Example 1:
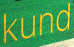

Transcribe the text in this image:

kund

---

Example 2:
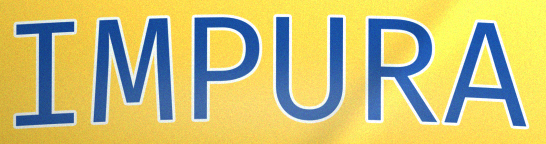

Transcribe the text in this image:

IMPURA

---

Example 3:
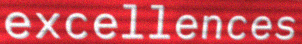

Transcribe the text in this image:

excellences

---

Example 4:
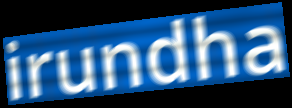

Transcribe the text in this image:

irundha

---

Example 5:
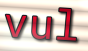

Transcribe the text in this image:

vul